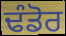
ਢੰਡੋਰ